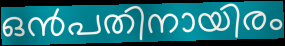
ഒൻപതിനായിരം